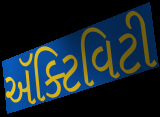
ઍક્ટિવિટી